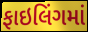
ફાઇલિંગમાં